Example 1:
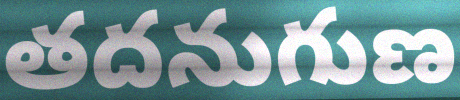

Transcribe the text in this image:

తదనుగుణ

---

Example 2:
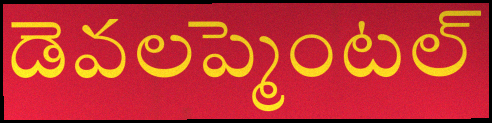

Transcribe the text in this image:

డెవలప్మెంటల్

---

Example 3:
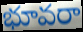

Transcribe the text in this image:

భూవరా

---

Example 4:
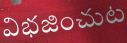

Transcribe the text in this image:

విభజించుట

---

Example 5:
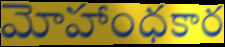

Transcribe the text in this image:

మోహాంధకార